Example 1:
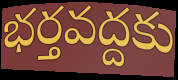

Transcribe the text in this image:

భర్తవద్దకు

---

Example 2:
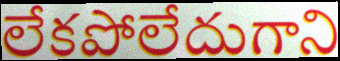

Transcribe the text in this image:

లేకపోలేదుగాని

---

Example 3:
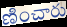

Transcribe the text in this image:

ణించారు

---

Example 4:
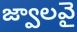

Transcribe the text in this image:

జ్వాలవై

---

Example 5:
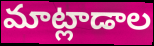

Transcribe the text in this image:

మాట్లాడాల